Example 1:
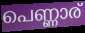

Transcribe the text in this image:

പെണ്ണാര്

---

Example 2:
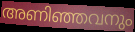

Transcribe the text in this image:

അണിഞ്ഞവനും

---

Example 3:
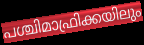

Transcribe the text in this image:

പശ്ചിമാഫ്രിക്കയിലും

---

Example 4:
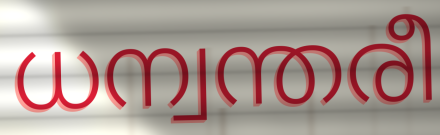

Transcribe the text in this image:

ധന്വന്തരീ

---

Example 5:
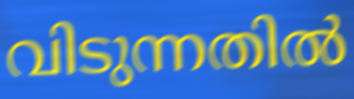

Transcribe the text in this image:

വിടുന്നതിൽ